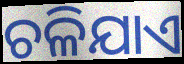
ଚଳିଯାଏ